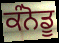
ਕੰਨੋਡੂ